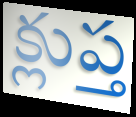
క్లుప్త